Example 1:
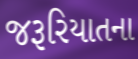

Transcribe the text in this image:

જરૂરિયાતના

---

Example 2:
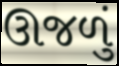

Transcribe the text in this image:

ઊજળું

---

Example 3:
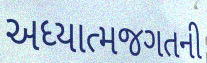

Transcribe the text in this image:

અધ્યાત્મજગતની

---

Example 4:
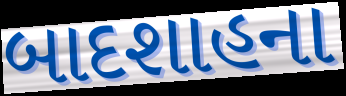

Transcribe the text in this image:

બાદશાહના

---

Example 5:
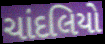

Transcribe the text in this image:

ચાંદલિયો